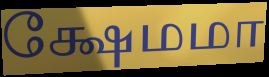
க்ஷேமமா